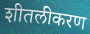
शीतलीकरण